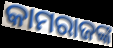
କାମରାଜଙ୍କ